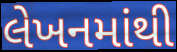
લેખનમાંથી